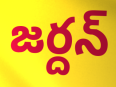
జర్దన్